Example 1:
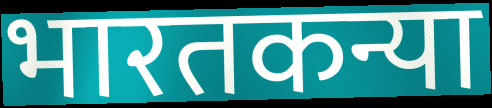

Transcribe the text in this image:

भारतकन्या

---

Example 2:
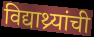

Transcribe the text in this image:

विद्याथ्र्यांची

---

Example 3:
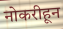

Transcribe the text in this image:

नोकरीहून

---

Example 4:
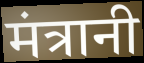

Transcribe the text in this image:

मंत्रानी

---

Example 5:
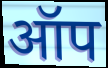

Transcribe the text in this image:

ऑप